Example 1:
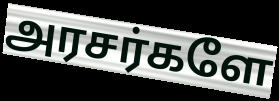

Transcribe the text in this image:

அரசர்களே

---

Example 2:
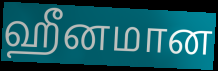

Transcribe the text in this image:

ஹீனமான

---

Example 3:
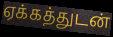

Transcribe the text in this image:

ஏக்கத்துடன்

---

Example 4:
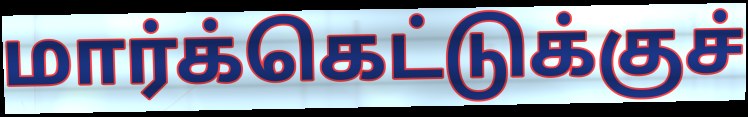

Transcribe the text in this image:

மார்க்கெட்டுக்குச்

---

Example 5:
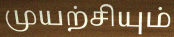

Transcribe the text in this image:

முயற்சியும்